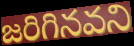
జరిగినవని